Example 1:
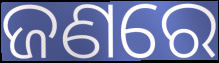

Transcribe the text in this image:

ଜଣରେ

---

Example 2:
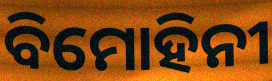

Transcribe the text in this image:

ବିମୋହିନୀ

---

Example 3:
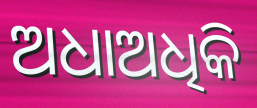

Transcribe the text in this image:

ଅଧାଅଧିକି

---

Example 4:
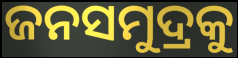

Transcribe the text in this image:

ଜନସମୁଦ୍ରକୁ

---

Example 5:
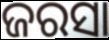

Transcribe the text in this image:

ଜରସା